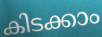
കിടക്കാം